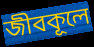
জীবকূলে